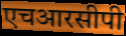
एचआरसीपी